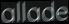
allade